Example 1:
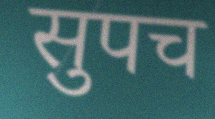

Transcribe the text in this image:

सुपच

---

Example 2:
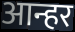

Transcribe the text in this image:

आन्हर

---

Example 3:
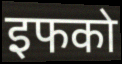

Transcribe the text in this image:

इफको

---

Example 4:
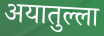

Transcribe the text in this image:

अयातुल्ला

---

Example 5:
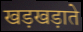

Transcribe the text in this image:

खड़खड़ाते